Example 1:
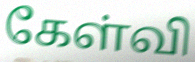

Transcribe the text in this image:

கேள்வி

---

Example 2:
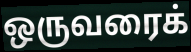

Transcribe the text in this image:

ஒருவரைக்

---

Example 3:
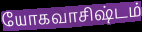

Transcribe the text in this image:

யோகவாசிஷ்டம்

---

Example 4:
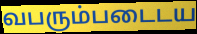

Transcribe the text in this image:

வபரும்படைடய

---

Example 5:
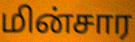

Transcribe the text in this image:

மின்சார